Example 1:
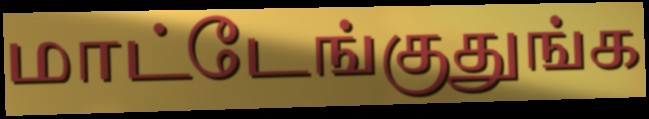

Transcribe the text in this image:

மாட்டேங்குதுங்க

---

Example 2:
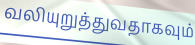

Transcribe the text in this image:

வலியுறுத்துவதாகவும்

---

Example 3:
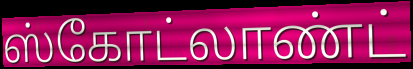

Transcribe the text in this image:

ஸ்கோட்லாண்ட்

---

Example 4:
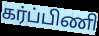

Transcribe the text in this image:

கர்ப்பிணி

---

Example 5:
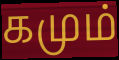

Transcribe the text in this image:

கமும்